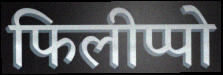
फिलीप्पो